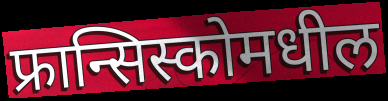
फ्रान्सिस्कोमधील